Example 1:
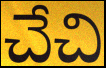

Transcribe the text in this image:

చేచి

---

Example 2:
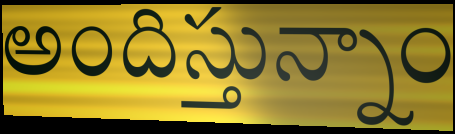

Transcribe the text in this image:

అందిస్తున్నాం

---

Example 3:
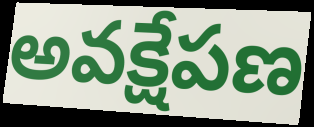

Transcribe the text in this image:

అవక్షేపణ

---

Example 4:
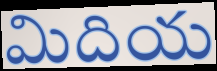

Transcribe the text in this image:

మిదియ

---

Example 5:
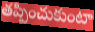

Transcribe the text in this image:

తప్పించుకుంటా